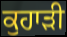
ਕੁਹਾੜੀ